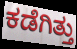
ಕಡೆಗಿತ್ತು